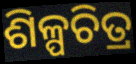
ଶିଳ୍ପଚିତ୍ର